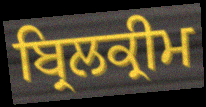
ਬ੍ਰਿਲਕ੍ਰੀਮ